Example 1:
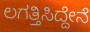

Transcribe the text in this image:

ಲಗತ್ತಿಸಿದ್ದೇನೆ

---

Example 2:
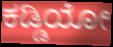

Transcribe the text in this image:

ಕಡ್ಡಿಯೋ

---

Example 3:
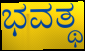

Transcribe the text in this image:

ಭವತ್ಥ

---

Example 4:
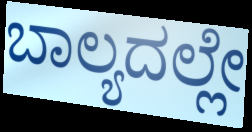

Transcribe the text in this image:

ಬಾಲ್ಯದಲ್ಲೇ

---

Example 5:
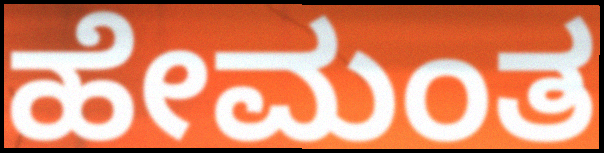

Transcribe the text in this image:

ಹೇಮಂತ